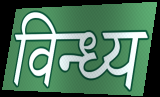
विन्ध्य